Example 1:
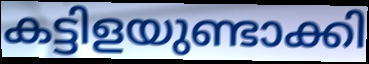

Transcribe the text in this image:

കട്ടിളയുണ്ടാക്കി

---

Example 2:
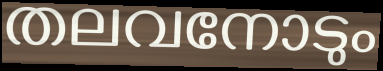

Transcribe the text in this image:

തലവനോടും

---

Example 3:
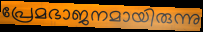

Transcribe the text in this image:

പ്രേമഭാജനമായിരുന്നു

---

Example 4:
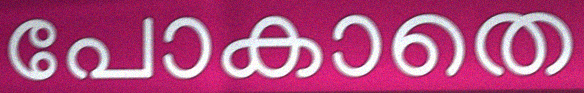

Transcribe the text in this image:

പോകാതെ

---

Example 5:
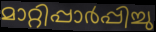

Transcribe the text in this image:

മാറ്റിപ്പാർപ്പിച്ചു